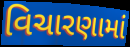
વિચારણામાં